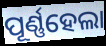
ପୂର୍ଣ୍ଣହେଲା